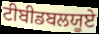
ਟੀਬੀਡਬਲਯੂਏ